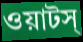
ওয়াটস্